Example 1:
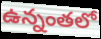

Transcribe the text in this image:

ఉన్నంతలో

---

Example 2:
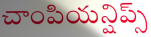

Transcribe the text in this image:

చాంపియన్షిప్స్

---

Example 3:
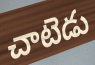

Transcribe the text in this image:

చాటెడు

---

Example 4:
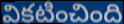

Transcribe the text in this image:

వికటించింది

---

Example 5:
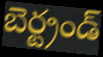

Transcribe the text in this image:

బెర్ట్రండ్